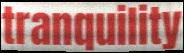
tranquility